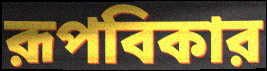
রূপবিকার